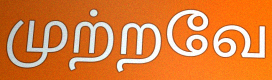
முற்றவே